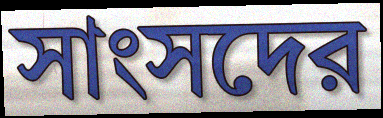
সাংসদের